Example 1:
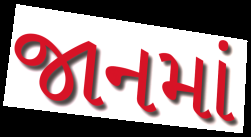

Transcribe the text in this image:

જાનમાં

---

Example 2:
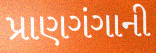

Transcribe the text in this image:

પ્રાણગંગાની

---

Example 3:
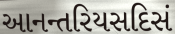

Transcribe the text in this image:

આનન્તરિયસદિસં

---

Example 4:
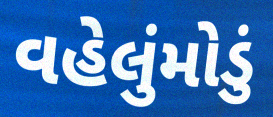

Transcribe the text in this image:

વહેલુંમોડું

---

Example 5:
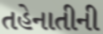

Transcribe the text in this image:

તહેનાતીની